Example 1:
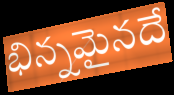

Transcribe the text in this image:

భిన్నమైనదే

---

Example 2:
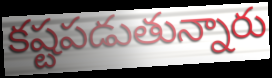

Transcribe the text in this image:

కష్టపడుతున్నారు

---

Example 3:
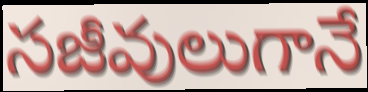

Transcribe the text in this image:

సజీవులుగానే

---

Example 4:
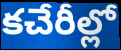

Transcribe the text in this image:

కచేరీల్లో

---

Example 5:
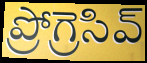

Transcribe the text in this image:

ప్రోగ్రెసివ్